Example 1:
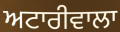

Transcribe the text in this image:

ਅਟਾਰੀਵਾਲਾ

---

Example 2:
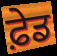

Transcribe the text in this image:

ਫ਼ੇਡ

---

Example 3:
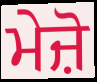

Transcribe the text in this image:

ਮੇਜ਼ੋ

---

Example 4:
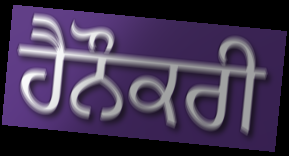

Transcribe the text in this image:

ਹੈਨੌਕਰੀ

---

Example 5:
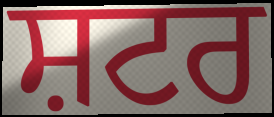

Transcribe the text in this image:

ਸ਼ਟਰ